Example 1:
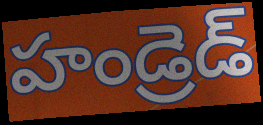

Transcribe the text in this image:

హండ్రెడ్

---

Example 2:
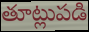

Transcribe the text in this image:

తూట్లుపడి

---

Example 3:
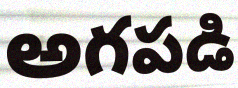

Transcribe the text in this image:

అగపడి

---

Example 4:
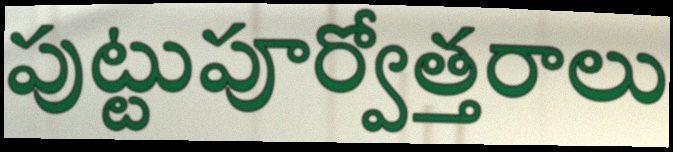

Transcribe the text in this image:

పుట్టుపూర్వోత్తరాలు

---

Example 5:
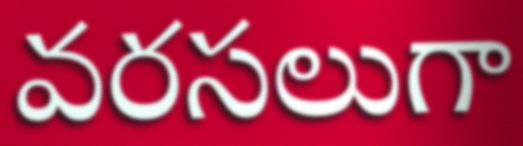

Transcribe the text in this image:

వరసలుగా